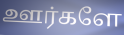
ஊர்களே